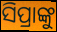
ସିପ୍ରାଙ୍କୁ